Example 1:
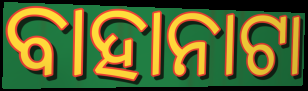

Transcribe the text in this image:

ବାହାନାଟା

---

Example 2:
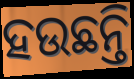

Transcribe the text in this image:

ହଉଛନ୍ତି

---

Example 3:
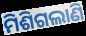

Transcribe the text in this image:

ମିଶିଗଲାଣି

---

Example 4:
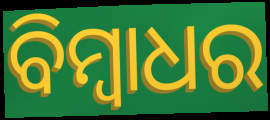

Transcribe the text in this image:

ବିମ୍ବାଧର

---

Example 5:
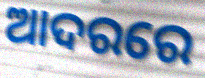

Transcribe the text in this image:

ଆଦରରେ